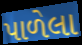
પાળેલા